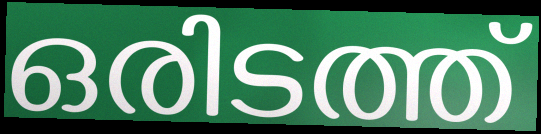
ഒരിടത്ത്